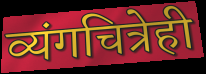
व्यंगचित्रेही